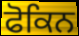
ਫੋਕਿਨ